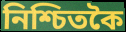
নিশ্চিতকৈ